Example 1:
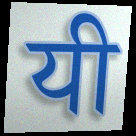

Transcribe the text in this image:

यी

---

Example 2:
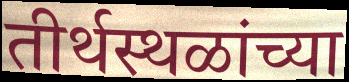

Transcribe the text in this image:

तीर्थस्थळांच्या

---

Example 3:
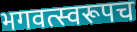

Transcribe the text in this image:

भगवत्स्वरूपच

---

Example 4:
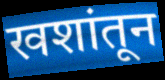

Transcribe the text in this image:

खशांतून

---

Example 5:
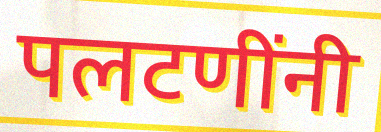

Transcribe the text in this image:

पलटणींनी